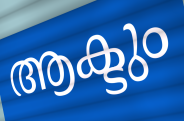
ആക്ടും